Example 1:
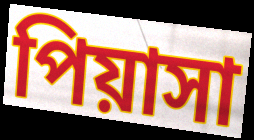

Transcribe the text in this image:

পিয়াসা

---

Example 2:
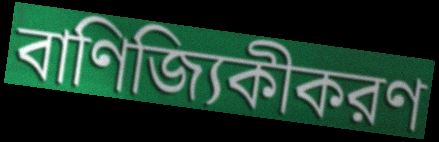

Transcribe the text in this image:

বাণিজ্যিকীকরণ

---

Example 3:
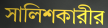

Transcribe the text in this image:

সালিশকারীর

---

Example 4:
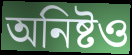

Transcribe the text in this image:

অনিষ্টও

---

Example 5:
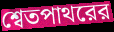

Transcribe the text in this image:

শ্বেতপাথরের